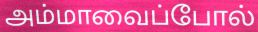
அம்மாவைப்போல்